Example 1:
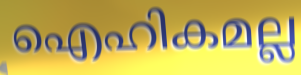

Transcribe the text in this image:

ഐഹികമല്ല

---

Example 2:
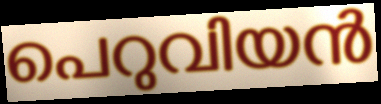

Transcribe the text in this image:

പെറുവിയൻ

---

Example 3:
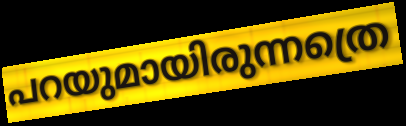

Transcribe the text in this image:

പറയുമായിരുന്നത്രെ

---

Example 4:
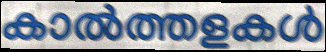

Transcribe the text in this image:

കാൽത്തളകൾ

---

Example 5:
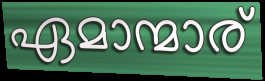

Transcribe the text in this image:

ഏമാന്മാര്